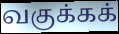
வகுக்கக்